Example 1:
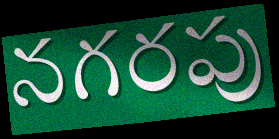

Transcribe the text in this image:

నగరపు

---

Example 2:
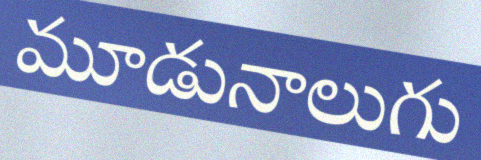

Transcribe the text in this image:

మూడునాలుగు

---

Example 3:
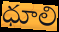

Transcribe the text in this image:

ధూలి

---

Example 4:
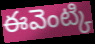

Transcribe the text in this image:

ఈవెంట్కి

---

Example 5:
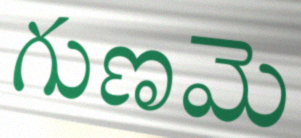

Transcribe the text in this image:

గుణమె